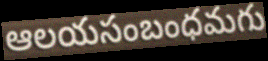
ఆలయసంబంధమగు